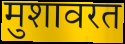
मुशावरत